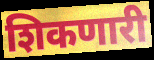
शिकणारी